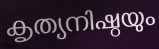
കൃത്യനിഷ്ഠയും